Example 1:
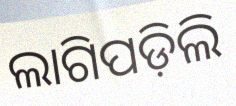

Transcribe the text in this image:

ଲାଗିପଡ଼ିଲି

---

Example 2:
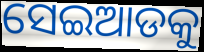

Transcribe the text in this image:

ସେଇଆଡକୁ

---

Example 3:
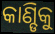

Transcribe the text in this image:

କାଣ୍ଡିକୁ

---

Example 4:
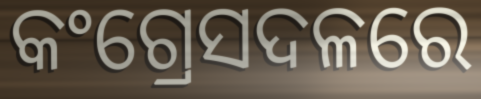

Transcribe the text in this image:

କଂଗ୍ରେସଦଳରେ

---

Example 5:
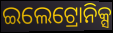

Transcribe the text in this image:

ଇଲେଟ୍ରୋନିକ୍ସ